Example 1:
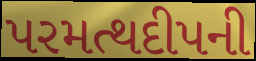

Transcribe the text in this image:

પરમત્થદીપની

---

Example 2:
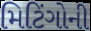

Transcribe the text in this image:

મિટિંગોની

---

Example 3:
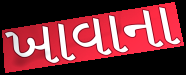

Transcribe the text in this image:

ખાવાના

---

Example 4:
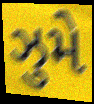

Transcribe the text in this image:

ઝુમે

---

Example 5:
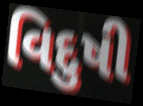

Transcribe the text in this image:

વિદુષી